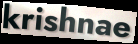
krishnae